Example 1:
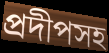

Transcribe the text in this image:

প্রদীপসহ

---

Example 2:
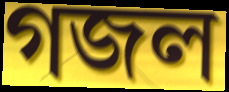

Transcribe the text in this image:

গজল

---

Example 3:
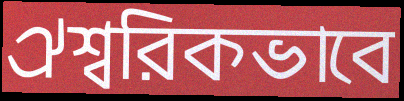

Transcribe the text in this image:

ঐশ্বরিকভাবে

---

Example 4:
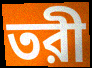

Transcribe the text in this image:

তরী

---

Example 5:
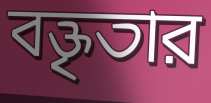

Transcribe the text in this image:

বক্তৃতার